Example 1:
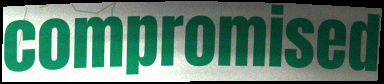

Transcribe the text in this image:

compromised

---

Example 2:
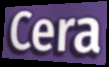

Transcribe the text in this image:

Cera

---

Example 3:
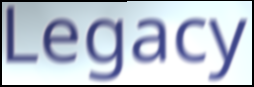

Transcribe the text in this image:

Legacy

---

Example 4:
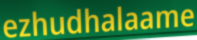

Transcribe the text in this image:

ezhudhalaame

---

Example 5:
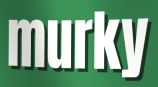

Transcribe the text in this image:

murky